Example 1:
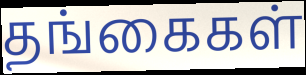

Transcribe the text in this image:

தங்கைகள்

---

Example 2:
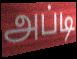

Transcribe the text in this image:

அப்டி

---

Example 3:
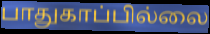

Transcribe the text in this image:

பாதுகாப்பில்லை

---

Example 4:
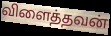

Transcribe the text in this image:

விளைத்தவன்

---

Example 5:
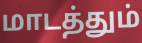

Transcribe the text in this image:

மாடத்தும்